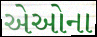
એઓના